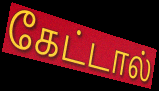
கேட்டால்